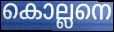
കൊല്ലനെ